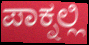
ಪಾಕ್ನಲ್ಲಿ